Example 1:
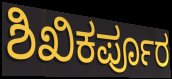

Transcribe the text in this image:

ಶಿಖಿಕರ್ಪೂರ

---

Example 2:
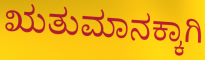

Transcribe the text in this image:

ಋತುಮಾನಕ್ಕಾಗಿ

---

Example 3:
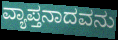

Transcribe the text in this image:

ವ್ಯಾಪ್ತನಾದವನು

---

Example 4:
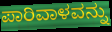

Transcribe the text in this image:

ಪಾರಿವಾಳವನ್ನು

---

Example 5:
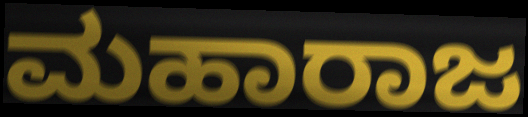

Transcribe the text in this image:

ಮಹಾರಾಜ